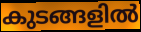
കുടങ്ങളിൽ